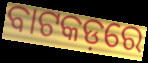
ବାଟକଡ଼ରେ